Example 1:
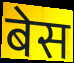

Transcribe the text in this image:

बेस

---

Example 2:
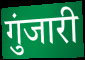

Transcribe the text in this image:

गुंजारी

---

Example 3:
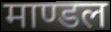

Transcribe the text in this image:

माण्डल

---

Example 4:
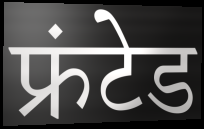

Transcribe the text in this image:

फ्रंटेड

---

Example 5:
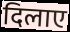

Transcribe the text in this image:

दिलाए